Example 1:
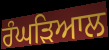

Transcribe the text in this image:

ਰੰਘੜਿਆਲ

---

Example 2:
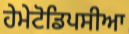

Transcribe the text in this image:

ਹੇਮੇਟੋਡਿਪਸੀਆ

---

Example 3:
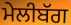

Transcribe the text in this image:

ਮੇਲੀਬੱਗ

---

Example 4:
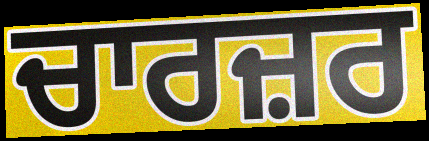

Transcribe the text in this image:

ਚਾਰਜ਼ਰ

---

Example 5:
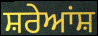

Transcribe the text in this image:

ਸ਼ਰੇਆਂਸ਼